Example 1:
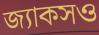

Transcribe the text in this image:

জ্যাকসও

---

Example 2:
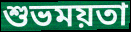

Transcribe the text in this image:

শুভময়তা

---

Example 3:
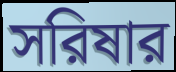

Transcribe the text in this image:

সরিষার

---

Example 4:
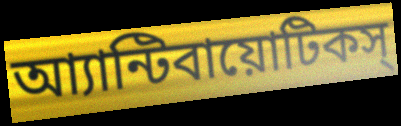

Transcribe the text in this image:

আ্যান্টিবায়োটিকস্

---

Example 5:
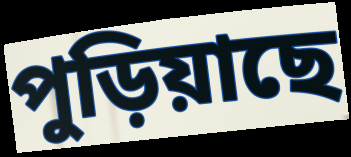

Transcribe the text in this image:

পুড়িয়াছে